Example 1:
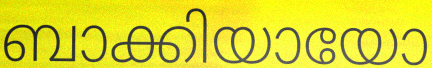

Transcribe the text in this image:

ബാക്കിയായോ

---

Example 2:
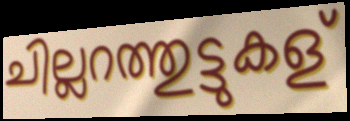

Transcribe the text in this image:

ചില്ലറത്തുട്ടുകള്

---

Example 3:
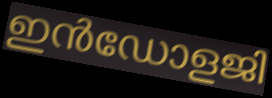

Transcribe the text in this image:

ഇൻഡോളജി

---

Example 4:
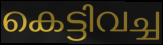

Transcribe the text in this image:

കെട്ടിവച്ച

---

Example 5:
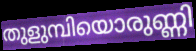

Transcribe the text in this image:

തുളുമ്പിയൊരുണ്ണി